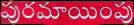
పురమాయింపు